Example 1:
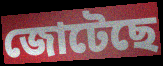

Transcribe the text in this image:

জোটেছে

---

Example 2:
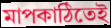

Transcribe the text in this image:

মাপকাঠিতেই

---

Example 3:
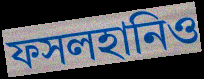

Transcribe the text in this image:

ফসলহানিও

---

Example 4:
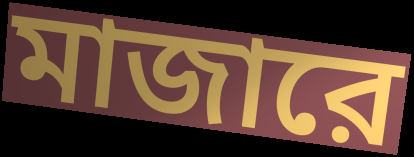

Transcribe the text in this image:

মাজারে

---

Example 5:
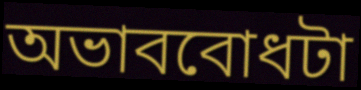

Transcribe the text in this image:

অভাববোধটা